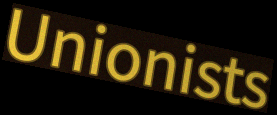
Unionists